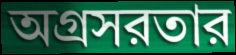
অগ্রসরতার